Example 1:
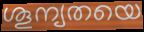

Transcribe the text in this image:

ശൂന്യതയെ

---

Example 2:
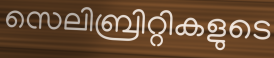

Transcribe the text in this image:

സെലിബ്രിറ്റികളുടെ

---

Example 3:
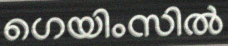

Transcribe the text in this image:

ഗെയിംസിൽ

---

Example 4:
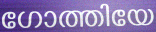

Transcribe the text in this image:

ഗോത്തിയേ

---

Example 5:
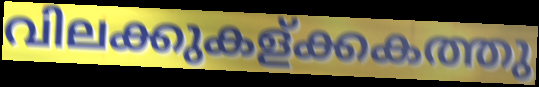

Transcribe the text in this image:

വിലക്കുകള്ക്കകത്തു